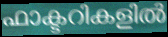
ഫാക്ടറികളിൽ